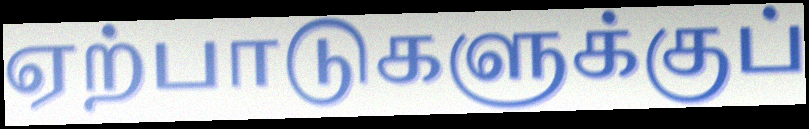
ஏற்பாடுகளுக்குப்